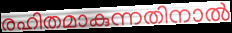
രഹിതമാകുന്നതിനാൽ